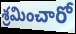
శ్రమించారో